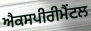
ਐਕਸਪੀਰੀਮੈਂਟਲ